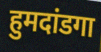
हुमदांडगा